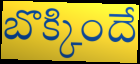
బొక్కిందే